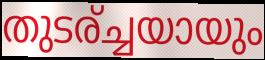
തുടര്ച്ചയായും